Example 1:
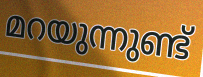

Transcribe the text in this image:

മറയുന്നുണ്ട്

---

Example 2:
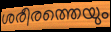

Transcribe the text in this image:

ശരീരത്തെയും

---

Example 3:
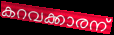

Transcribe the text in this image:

കറവക്കാരന്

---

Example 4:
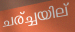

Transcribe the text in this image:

ചര്ച്ചയില്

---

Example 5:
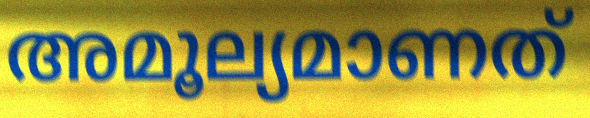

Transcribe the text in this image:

അമൂല്യമാണത്